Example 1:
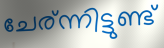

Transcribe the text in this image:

ചേര്ന്നിട്ടുണ്ട്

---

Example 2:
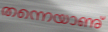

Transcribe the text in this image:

തന്നെയാണു്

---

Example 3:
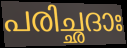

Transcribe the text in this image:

പരിച്ഛദാഃ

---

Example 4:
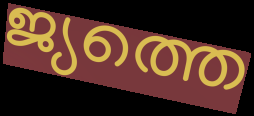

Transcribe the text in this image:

ജ്യത്തെ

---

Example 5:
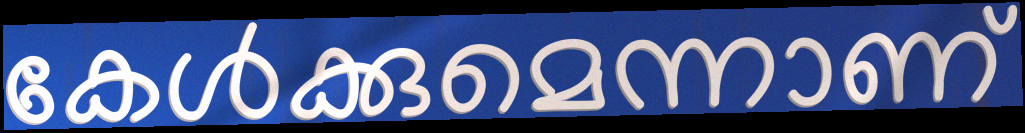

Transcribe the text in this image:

കേൾക്കുമെന്നാണ്